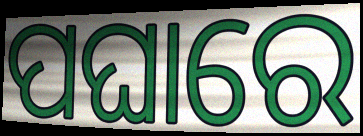
ପଘାରେ